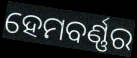
ହେମବର୍ଣ୍ଣର